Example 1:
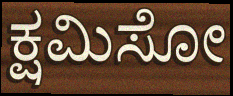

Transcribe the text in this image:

ಕ್ಷಮಿಸೋ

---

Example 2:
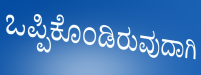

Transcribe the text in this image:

ಒಪ್ಪಿಕೊಂಡಿರುವುದಾಗಿ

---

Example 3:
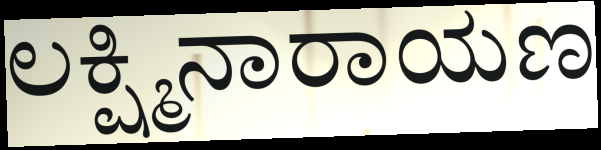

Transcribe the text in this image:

ಲಕ್ಷ್ಮಿನಾರಾಯಣ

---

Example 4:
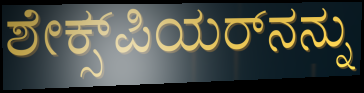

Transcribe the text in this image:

ಶೇಕ್ಸ್‌ಪಿಯರ್‌ನನ್ನು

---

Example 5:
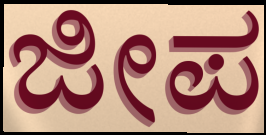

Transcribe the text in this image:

ಜೀಪ